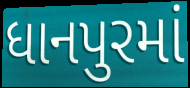
ધાનપુરમાં